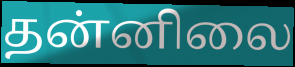
தன்னிலை